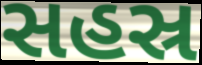
સહસ્ર